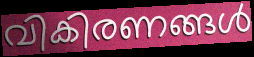
വികിരണങ്ങൾ